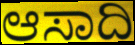
ಆಸಾದಿ